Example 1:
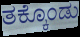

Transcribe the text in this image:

ತಕ್ಕೊಂಡು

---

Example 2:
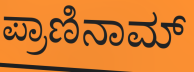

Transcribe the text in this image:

ಪ್ರಾಣಿನಾಮ್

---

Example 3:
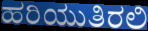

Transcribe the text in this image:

ಹರಿಯುತಿರಲಿ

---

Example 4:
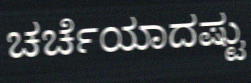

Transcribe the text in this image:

ಚರ್ಚೆಯಾದಷ್ಟು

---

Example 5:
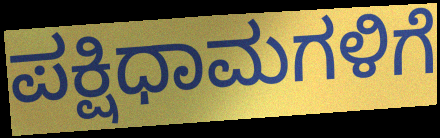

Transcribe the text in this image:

ಪಕ್ಷಿಧಾಮಗಳಿಗೆ